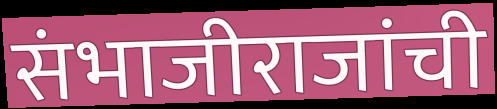
संभाजीराजांची